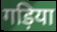
गड़िया